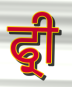
ਫ੍ਰੀ